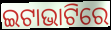
ଇଟାଭାଟିରେ